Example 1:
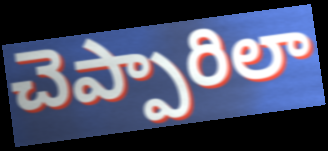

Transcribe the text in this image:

చెప్పారిలా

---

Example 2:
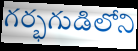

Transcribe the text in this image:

గర్భగుడిలోని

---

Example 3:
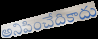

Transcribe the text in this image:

అనిపించేదికాదు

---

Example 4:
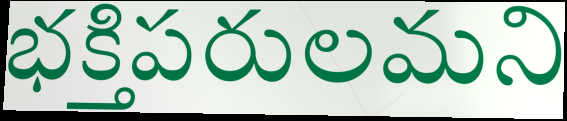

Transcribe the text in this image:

భక్తిపరులమని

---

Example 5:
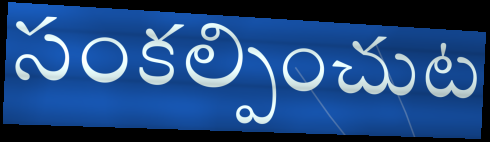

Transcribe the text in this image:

సంకల్పించుట